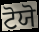
ਟੋਯੋ